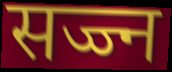
सज्ज्न